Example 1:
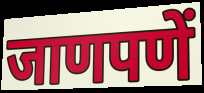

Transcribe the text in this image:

जाणपणें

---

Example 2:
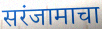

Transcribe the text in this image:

सरंजामाचा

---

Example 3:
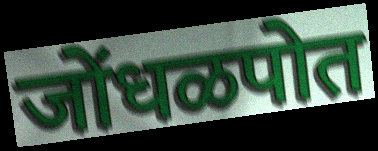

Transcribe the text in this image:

जोंधळपोत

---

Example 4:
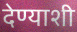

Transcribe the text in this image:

देण्याशी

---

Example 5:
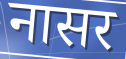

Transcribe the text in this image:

नासर